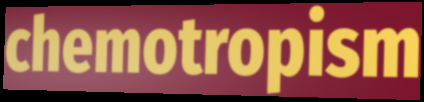
chemotropism